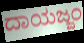
ದಾಯಜ್ಜಂ